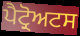
ਪੈਟ੍ਰੋਅਟਸ